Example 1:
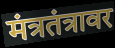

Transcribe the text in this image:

मंत्रतंत्रावर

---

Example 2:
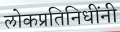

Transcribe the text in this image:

लोकप्रतिनिधींनी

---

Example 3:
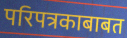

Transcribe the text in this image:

परिपत्रकाबाबत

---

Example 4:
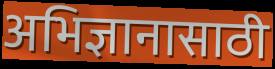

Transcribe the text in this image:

अभिज्ञानासाठी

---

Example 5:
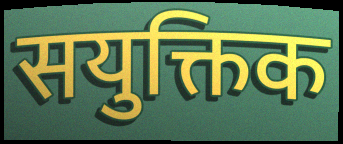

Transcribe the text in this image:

सयुक्तिक